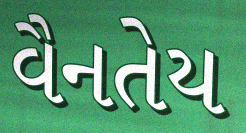
વૈનતેય